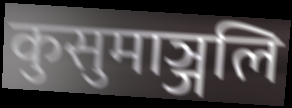
कुसुमाञ्जलि